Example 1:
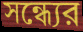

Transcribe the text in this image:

সন্ধ্যের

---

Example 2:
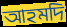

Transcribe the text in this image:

আহমদি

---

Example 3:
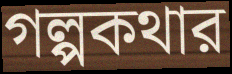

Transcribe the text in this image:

গল্পকথার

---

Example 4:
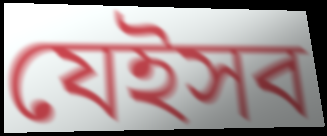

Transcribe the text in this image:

যেইসব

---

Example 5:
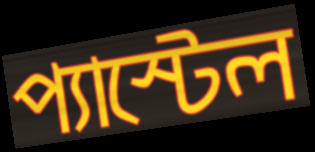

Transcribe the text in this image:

প্যাস্টেল